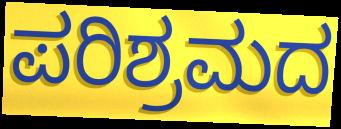
ಪರಿಶ್ರಮದ